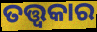
ତତ୍ତ୍ୱକାର